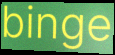
binge